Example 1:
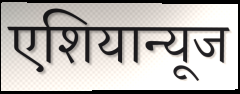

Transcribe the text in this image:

एशियान्यूज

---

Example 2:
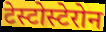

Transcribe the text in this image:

टेस्‍टोस्‍टेरोन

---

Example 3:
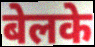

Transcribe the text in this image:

बेलके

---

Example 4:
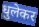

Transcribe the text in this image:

धुलेकर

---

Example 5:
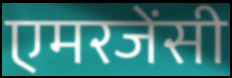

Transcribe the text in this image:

एमरजेंसी